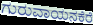
ಗುರುವಾಯನಕೆರೆ